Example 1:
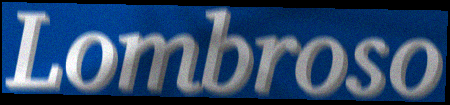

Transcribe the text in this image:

Lombroso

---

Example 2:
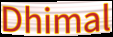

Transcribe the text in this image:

Dhimal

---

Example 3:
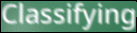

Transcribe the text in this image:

Classifying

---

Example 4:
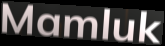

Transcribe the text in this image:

Mamluk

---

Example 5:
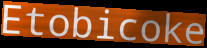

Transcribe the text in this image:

Etobicoke